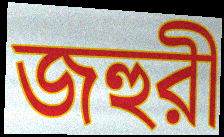
জহুরী